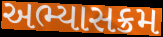
અભ્યાસક્રમ